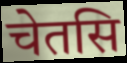
चेतसि